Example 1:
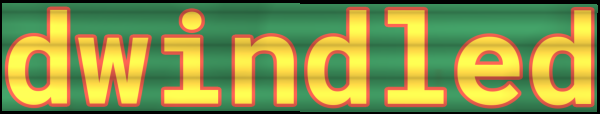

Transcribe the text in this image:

dwindled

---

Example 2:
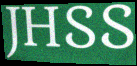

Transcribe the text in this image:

JHSS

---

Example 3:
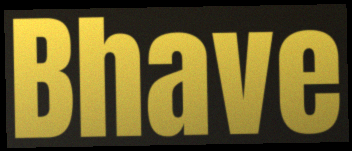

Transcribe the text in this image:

Bhave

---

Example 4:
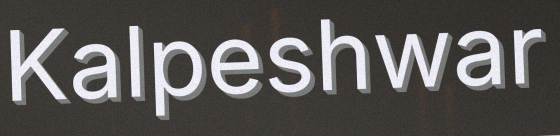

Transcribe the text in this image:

Kalpeshwar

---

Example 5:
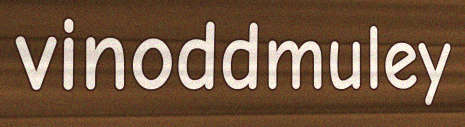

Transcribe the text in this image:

vinoddmuley